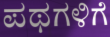
ಪಥಗಳಿಗೆ